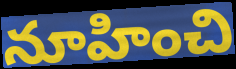
నూహించి